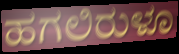
ಹಗಲಿರುಳೂ